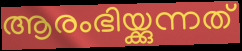
ആരംഭിയ്ക്കുന്നത്